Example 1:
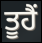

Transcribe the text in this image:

ਤੂਹੈਂ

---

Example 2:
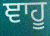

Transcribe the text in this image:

ਞਾਹੂ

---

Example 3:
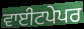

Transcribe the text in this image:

ਵਾਈਟਪੇਪਰ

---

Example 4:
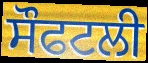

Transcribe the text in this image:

ਸੌਫਟਲੀ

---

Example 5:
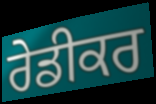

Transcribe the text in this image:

ਰੇਡੀਕਰ